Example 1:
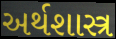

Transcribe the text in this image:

અર્થશાસ્ત્ર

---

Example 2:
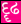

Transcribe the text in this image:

દૄઢ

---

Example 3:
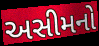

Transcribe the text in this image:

અસીમનો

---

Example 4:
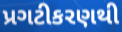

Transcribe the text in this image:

પ્રગટીકરણથી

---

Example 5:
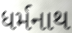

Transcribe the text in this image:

ધર્મનાથ